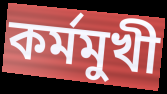
কর্মমুখী